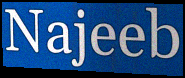
Najeeb